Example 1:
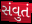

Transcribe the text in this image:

સંવુતં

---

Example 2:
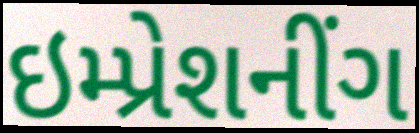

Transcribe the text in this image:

ઇમ્પ્રેશનીંગ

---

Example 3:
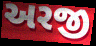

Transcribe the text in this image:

અરજી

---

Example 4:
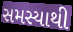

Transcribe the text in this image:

સમસ્યાથી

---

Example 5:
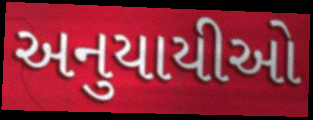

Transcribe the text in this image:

અનુયાયીઓ